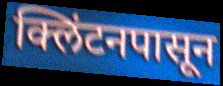
क्लिंटनपासून